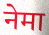
नेमा